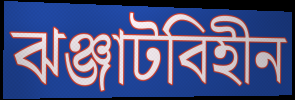
ঝঞ্জাটবিহীন